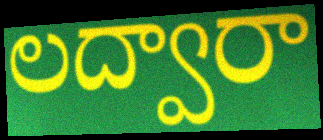
లద్వారా